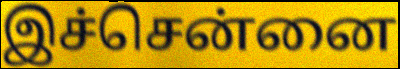
இச்சென்னை